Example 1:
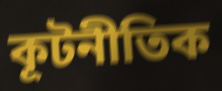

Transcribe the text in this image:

কূটনীতিক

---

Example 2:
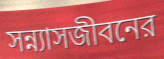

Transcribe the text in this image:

সন্ন্যাসজীবনের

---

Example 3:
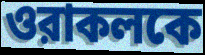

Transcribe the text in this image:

ওরাকলকে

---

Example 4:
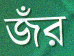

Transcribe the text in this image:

জঁর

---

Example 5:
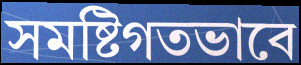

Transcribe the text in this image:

সমষ্টিগতভাবে